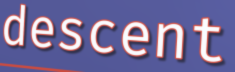
descent